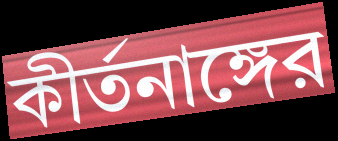
কীর্তনাঙ্গের